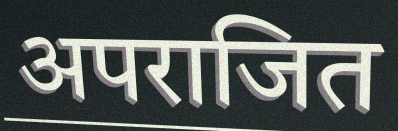
अपराजित